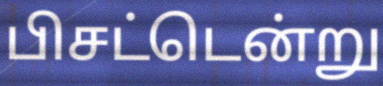
பிசட்டென்று